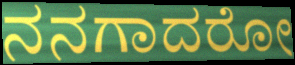
ನನಗಾದರೋ